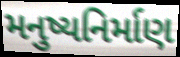
મનુષ્યનિર્માણ